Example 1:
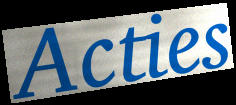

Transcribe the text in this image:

Acties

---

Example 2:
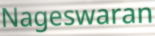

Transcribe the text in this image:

Nageswaran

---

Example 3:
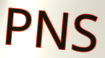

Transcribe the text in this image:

PNS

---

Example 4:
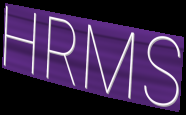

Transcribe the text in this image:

HRMS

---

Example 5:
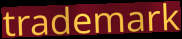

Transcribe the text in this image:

trademark